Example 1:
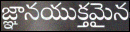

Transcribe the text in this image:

జ్ఞానయుక్తమైన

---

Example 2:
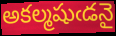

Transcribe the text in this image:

అకల్మషుఁడనై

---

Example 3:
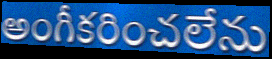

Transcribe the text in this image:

అంగీకరించలేను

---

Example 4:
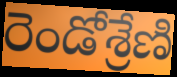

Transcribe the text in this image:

రెండోశ్రేణి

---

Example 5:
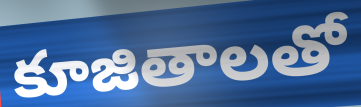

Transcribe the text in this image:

కూజితాలతో